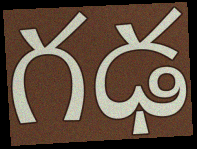
గఢ